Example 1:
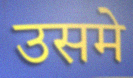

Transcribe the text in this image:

उसमे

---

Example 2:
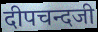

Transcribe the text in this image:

दीपचन्दजी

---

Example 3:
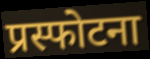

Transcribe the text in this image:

प्रस्फोटना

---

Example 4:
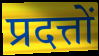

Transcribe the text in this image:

प्रदत्तों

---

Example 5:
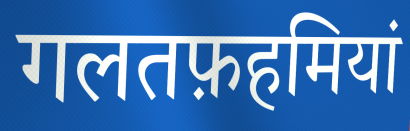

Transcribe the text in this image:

गलतफ़हमियां